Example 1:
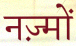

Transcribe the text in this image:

नज़्मों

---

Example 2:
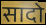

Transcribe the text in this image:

सादो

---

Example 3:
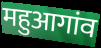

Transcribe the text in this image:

महुआगांव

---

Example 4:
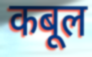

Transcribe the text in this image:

कबूल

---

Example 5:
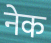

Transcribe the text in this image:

नेक